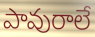
పావురాలే